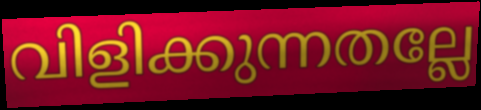
വിളിക്കുന്നതല്ലേ